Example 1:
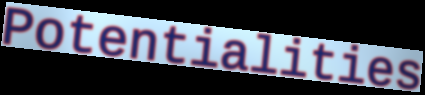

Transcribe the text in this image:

Potentialities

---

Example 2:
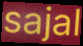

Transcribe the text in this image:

sajal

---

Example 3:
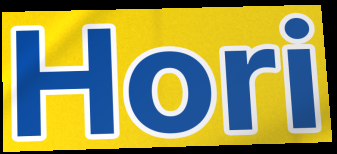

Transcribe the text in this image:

Hori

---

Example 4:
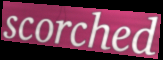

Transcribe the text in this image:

scorched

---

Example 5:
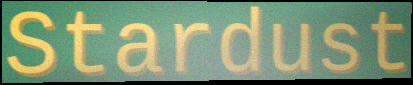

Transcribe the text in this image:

Stardust